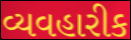
વ્યવહારીક